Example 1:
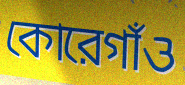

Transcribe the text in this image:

কোরেগাঁও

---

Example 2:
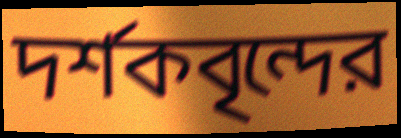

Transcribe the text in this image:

দর্শকবৃন্দের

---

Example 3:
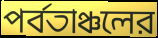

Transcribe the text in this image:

পর্বতাঞ্চলের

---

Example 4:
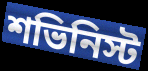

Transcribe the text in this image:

শভিনিস্ট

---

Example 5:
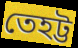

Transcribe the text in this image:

তেহট্ট